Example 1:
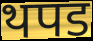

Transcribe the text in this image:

थपड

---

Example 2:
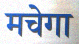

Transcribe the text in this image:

मचेगा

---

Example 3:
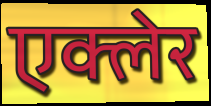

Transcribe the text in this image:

एक्लेर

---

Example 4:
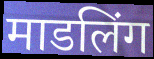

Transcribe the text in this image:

माडलिंग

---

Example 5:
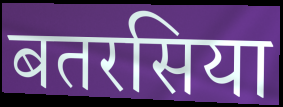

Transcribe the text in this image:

बतरसिया